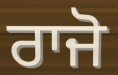
ਰਾਜੋ